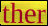
ther